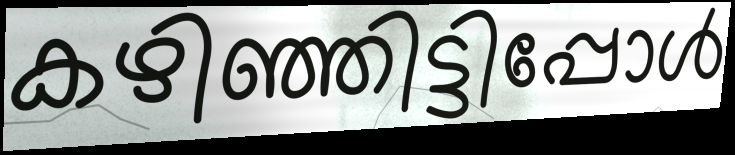
കഴിഞ്ഞിട്ടിപ്പോൾ